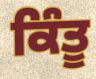
ਕਿੰਤੂ